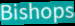
Bishops